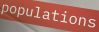
populations